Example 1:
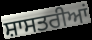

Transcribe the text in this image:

ਸ਼ਾਸਤਰੀਆਂ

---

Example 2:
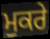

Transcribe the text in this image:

ਮੁਕਰੇ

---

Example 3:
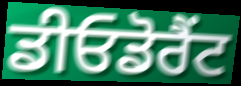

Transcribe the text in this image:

ਡੀਓਡੋਰੈਂਟ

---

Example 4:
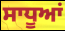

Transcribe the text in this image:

ਸਾਧੂਆਂ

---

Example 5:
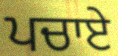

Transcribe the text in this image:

ਪਚਾਏ